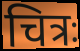
चित्रः